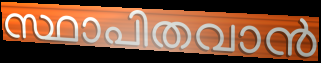
സ്ഥാപിതവാൻ